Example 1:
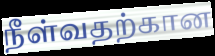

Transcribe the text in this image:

நீள்வதற்கான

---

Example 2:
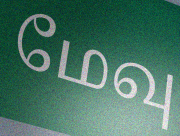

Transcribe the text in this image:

மேவு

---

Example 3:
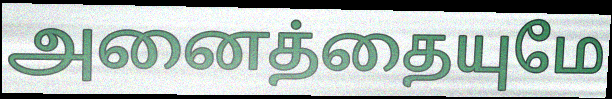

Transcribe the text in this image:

அனைத்தையுமே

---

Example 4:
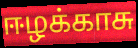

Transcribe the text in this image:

ஈழக்காசு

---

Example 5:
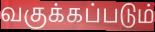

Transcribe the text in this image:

வகுக்கப்படும்